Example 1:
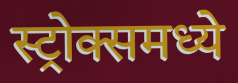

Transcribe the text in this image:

स्ट्रोक्समध्ये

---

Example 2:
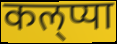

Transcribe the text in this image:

कल्प्या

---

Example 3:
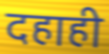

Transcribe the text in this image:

दहाही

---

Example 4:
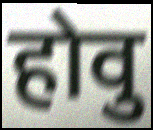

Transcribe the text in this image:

होवु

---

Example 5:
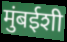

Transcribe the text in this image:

मुंबईशी